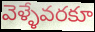
వెళ్ళేవరకూ